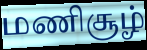
மணிசூழ்